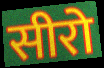
सीरो